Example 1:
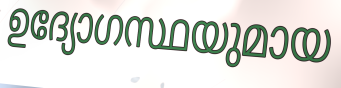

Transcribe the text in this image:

ഉദ്യോഗസ്ഥയുമായ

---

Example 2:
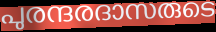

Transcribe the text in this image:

പുരന്ദരദാസരുടെ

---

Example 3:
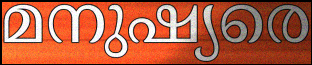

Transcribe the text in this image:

മനുഷ്യരെ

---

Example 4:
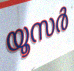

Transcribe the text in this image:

യൂസർ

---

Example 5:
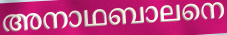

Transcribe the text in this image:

അനാഥബാലനെ